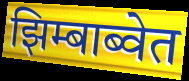
झिम्बाब्वेत